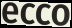
ecco